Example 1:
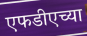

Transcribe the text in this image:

एफडीएच्या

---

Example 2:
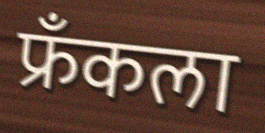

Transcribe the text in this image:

फ्रॅंकला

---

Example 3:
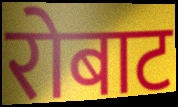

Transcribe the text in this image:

रोबाट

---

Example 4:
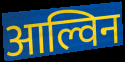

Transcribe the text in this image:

आल्विन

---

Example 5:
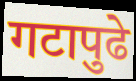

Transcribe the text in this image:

गटापुढे